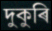
দুকুৰি